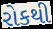
રોકથી